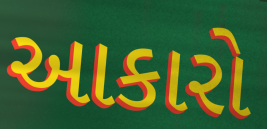
આકારો